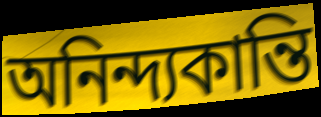
অনিন্দ্যকান্তি